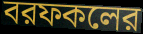
বরফকলের